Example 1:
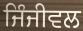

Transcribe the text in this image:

ਜਿੰਜੀਵਲ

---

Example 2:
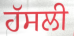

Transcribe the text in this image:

ਹੱਸਲੀ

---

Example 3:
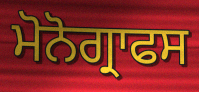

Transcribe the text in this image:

ਮੋਨੋਗ੍ਰਾਫਸ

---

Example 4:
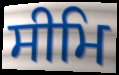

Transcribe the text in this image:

ਸੀਮਿ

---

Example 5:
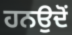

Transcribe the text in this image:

ਹਨਉਦੋਂ